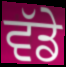
ਵੱਡੇ